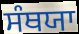
ਸੰਥਯਾ